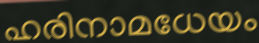
ഹരിനാമധേയം